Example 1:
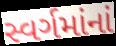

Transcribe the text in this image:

સ્વર્ગમાંનાં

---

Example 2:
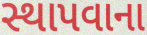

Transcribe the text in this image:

સ્થાપવાના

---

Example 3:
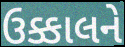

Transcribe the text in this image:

ઉક્કાલને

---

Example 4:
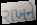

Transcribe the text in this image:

રાખને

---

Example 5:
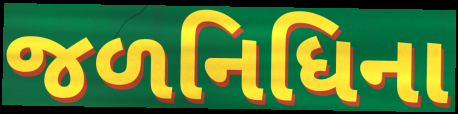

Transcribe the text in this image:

જળનિધિના